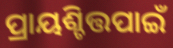
ପ୍ରାୟଶ୍ଚିତ୍ତପାଇଁ